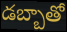
డబ్బాతో